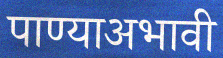
पाण्याअभावी